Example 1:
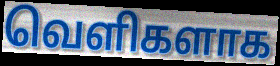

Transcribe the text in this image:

வெளிகளாக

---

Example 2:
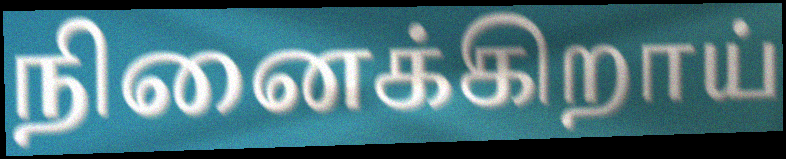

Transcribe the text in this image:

நினைக்கிறாய்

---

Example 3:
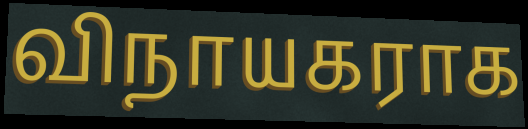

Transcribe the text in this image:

விநாயகராக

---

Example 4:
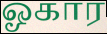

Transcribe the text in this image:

ஓகார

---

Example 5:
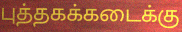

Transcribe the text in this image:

புத்தகக்கடைக்கு